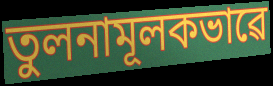
তুলনামূলকভাৱে